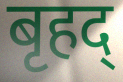
बृहद्